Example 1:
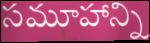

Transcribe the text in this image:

సమూహాన్ని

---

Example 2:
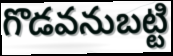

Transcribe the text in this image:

గొడవనుబట్టి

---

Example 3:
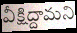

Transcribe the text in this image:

వీక్షిద్దామని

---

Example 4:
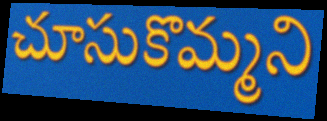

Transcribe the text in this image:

చూసుకొమ్మని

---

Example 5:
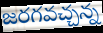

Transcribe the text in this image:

జరగవచ్చన్న